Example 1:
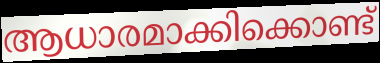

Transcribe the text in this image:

ആധാരമാക്കിക്കൊണ്ട്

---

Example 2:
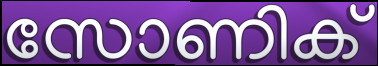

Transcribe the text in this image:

സോണിക്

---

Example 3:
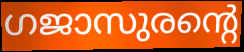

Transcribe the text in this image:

ഗജാസുരന്റെ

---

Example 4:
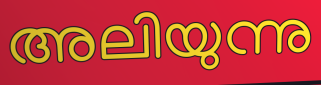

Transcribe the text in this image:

അലിയുന്നു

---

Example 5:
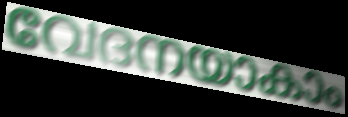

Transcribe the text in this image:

വേദനയാകാം